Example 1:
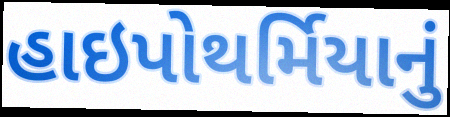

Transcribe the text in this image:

હાઇપોથર્મિયાનું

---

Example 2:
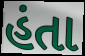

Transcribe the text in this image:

હંતા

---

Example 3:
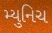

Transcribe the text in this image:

મ્યુનિચ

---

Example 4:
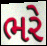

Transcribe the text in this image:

ભરે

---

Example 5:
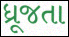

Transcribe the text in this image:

ધ્રૂજતા